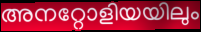
അനറ്റോളിയയിലും